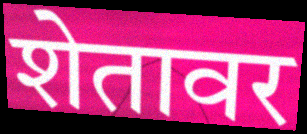
शेतावर